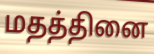
மதத்தினை